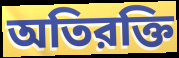
অতিরক্তি